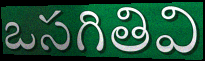
ఒసగితివి